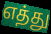
எத்து